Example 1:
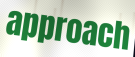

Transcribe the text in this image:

approach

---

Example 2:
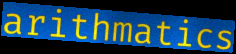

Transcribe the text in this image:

arithmatics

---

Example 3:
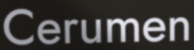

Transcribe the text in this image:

Cerumen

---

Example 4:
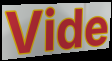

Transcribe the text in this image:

Vide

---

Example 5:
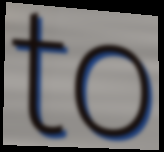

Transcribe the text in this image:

to